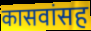
कासवांसह